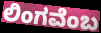
ಲಿಂಗವೆಂಬ